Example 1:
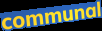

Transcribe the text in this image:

communal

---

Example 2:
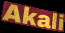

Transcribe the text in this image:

Akali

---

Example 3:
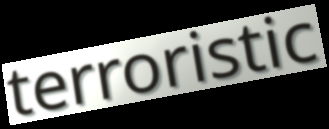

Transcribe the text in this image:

terroristic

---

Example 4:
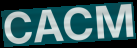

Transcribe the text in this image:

CACM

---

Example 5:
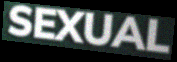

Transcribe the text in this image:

SEXUAL